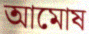
আমোষ